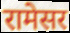
रामेसर